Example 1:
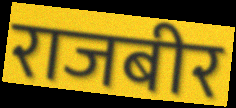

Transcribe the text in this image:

राजबीर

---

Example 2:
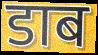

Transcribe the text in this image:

डाब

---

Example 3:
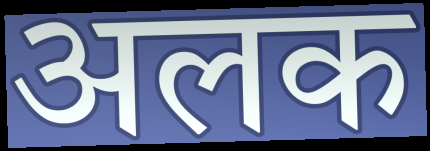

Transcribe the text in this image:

अलक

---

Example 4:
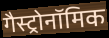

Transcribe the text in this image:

गैस्ट्रोनॉमिक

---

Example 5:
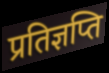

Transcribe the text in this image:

प्रतिज्ञप्ति